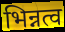
भिन्नत्व